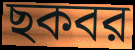
ছকবর